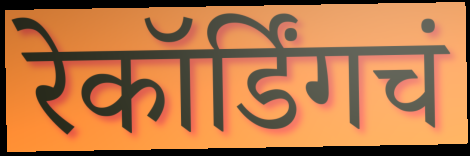
रेकॉर्डिंगचं